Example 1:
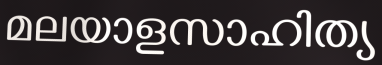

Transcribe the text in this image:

മലയാളസാഹിത്യ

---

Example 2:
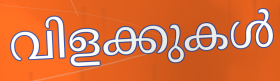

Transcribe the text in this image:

വിളക്കുകൾ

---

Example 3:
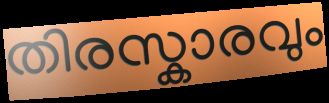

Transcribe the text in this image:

തിരസ്കാരവും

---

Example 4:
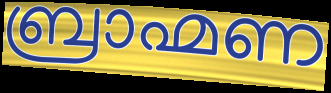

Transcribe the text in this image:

ബ്രാഹ്മണ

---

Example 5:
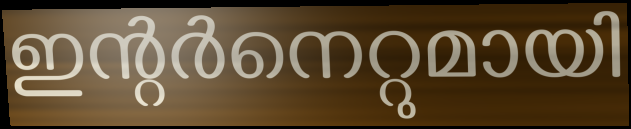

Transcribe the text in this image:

ഇന്റർനെറ്റുമായി